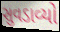
સુવડાવ્યો